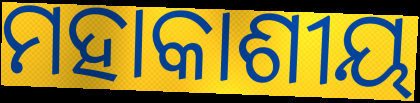
ମହାକାଶୀୟ